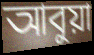
আবুয়া